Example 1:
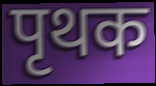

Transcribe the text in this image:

पृथक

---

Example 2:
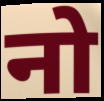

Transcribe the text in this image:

नो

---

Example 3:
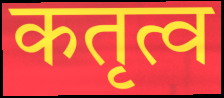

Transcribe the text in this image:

कतृत्व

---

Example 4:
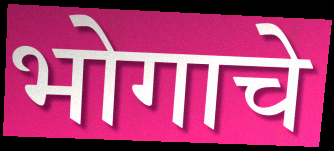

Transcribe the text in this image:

भोगाचे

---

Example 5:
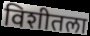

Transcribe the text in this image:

विशीतला